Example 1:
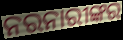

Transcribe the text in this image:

ନରନାରୀଙ୍କର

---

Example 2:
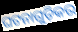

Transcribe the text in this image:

ଘଟନାଗୁଡ଼ିକର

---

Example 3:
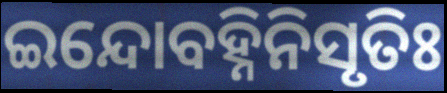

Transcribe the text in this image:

ଇନ୍ଦୋବହ୍ନିନିସୃତିଃ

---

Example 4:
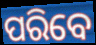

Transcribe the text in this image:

ପରିବେ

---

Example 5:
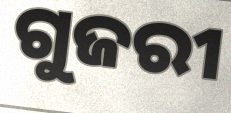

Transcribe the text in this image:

ଗୁଜରୀ